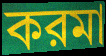
করমা